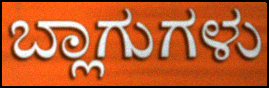
ಬ್ಲಾಗುಗಳು